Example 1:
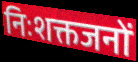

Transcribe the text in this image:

निःशक्तजनों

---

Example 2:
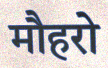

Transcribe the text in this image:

मौहरो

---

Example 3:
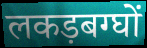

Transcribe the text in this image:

लकड़बग्घों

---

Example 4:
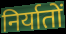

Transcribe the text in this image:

निर्यातों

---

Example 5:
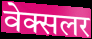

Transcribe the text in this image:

वेक्सलर